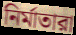
নির্মাতারা